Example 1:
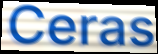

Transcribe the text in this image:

Ceras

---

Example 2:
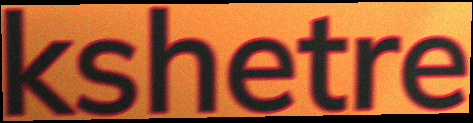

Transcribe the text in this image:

kshetre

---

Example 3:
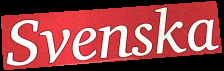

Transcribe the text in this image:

Svenska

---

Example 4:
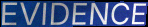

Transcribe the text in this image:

EVIDENCE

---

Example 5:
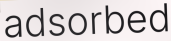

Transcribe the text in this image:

adsorbed